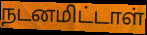
நடனமிட்டாள்